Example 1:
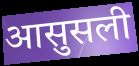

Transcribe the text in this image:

आसुसली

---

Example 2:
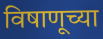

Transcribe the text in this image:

विषाणूच्या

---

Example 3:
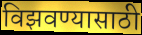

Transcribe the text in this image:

विझवण्यासाठी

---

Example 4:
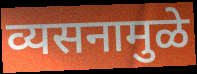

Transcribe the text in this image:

व्यसनामुळे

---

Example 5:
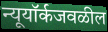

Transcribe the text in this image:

न्यूयॉर्कजवळील